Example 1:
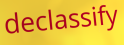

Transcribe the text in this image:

declassify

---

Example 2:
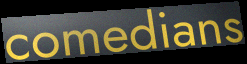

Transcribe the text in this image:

comedians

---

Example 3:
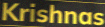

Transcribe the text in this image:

Krishnas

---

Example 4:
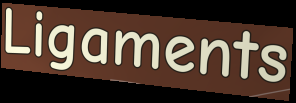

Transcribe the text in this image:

Ligaments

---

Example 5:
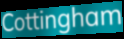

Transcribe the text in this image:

Cottingham